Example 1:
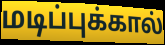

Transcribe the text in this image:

மடிப்புக்கால்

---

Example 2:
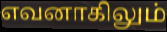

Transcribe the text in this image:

எவனாகிலும்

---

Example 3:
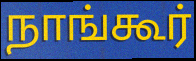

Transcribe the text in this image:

நாங்கூர்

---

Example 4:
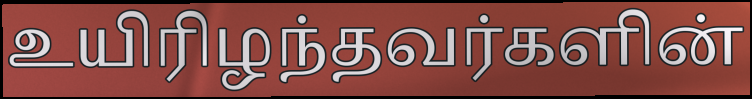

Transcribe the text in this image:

உயிரிழந்தவர்களின்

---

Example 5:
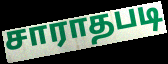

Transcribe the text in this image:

சாராதபடி